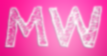
MW